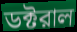
ডক্টরাল